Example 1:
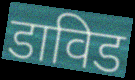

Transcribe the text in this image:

डाविड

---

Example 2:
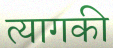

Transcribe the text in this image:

त्यागकी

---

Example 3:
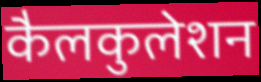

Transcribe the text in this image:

कैलकुलेशन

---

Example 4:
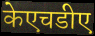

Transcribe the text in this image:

केएचडीए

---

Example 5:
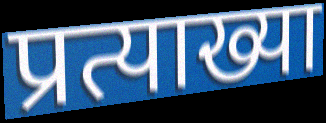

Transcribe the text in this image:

प्रत्याख्या